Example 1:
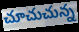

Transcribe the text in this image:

చూచుచున్న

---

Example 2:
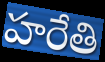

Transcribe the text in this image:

హరేతి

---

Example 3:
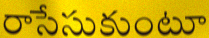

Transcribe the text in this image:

రాసేసుకుంటూ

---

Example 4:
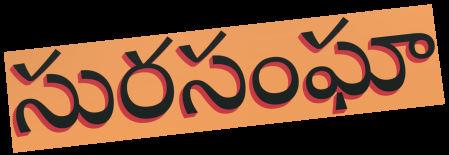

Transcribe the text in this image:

సురసంఘా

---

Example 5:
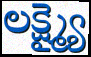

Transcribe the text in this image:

లక్ష్మ్యై